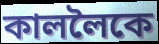
কাললৈকে